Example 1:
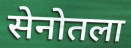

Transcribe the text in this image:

सेनोतला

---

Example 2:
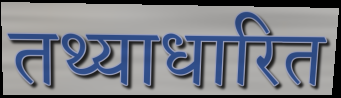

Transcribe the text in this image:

तथ्याधारित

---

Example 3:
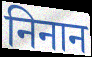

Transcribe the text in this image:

निनान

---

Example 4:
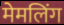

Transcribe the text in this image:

मेमलिंग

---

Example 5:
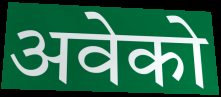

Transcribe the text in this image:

अवेको